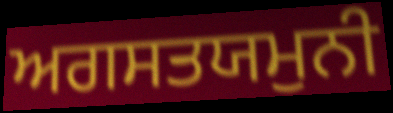
ਅਗਸਤਯਮੁਨੀ